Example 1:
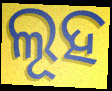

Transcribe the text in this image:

ଲୂହ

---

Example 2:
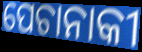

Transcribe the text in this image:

ପେଚାନାକୀ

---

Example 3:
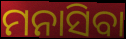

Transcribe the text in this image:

ମନାସିବା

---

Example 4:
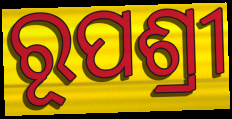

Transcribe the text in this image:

ରୂପଶ୍ରୀ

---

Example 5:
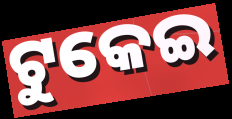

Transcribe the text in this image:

ଟୁକେଇ